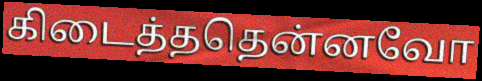
கிடைத்ததென்னவோ